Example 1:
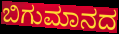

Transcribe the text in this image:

ಬಿಗುಮಾನದ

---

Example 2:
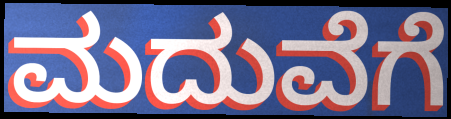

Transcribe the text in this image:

ಮದುವೆಗೆ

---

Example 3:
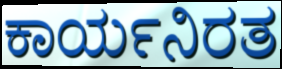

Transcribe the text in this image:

ಕಾರ್ಯನಿರತ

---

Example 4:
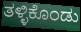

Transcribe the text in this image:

ತಳ್ಳಿಕೊಂಡು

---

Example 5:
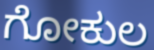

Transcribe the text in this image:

ಗೋಕುಲ